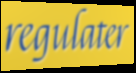
regulater